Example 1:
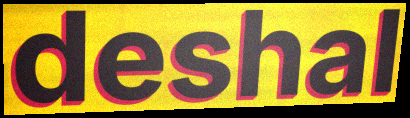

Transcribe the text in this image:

deshal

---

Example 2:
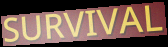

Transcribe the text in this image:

SURVIVAL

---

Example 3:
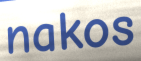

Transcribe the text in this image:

nakos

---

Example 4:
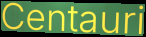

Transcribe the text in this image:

Centauri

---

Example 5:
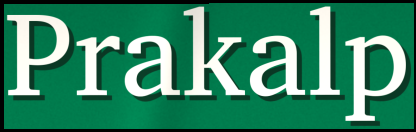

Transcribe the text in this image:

Prakalp